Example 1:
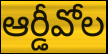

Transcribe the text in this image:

ఆర్డీవోల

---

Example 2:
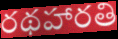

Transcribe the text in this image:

రథహారతి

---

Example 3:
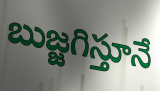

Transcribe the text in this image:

బుజ్జగిస్తూనే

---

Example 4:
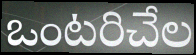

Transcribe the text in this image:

ఒంటరిచేల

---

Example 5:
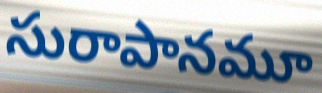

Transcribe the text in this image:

సురాపానమూ